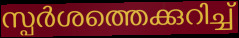
സ്പർശത്തെക്കുറിച്ച്